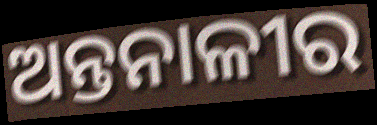
ଅନ୍ତନାଳୀର